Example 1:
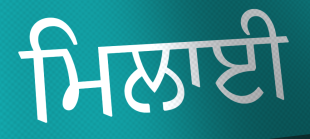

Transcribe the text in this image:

ਮਿਲਾਈ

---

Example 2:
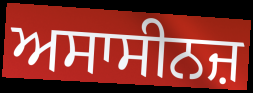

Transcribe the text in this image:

ਅਸਾਸੀਨਜ਼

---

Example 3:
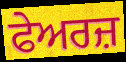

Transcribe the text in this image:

ਫੇਅਰਜ਼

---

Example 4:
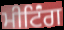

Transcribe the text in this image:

ਮੀਟਿਂੰਗ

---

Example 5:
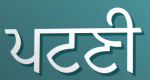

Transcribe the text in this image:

ਪਟਣੀ